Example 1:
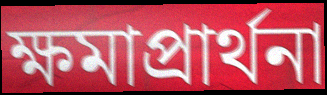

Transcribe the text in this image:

ক্ষমাপ্রার্থনা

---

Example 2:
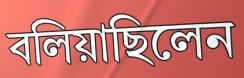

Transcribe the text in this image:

বলিয়াছিলেন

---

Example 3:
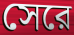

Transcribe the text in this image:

সেরে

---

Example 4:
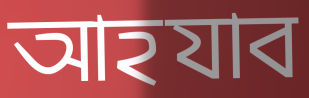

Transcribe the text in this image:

আহযাব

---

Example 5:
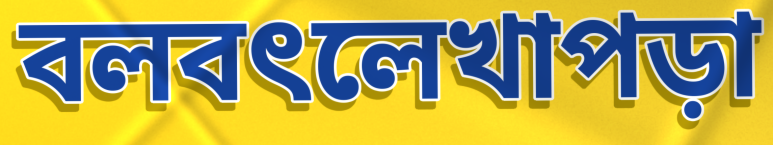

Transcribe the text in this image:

বলবৎলেখাপড়া